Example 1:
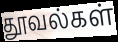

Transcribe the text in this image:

தூவல்கள்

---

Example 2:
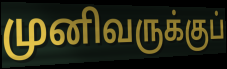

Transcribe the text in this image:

முனிவருக்குப்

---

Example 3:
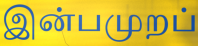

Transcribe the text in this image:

இன்பமுறப்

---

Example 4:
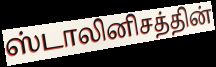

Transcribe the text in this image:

ஸ்டாலினிசத்தின்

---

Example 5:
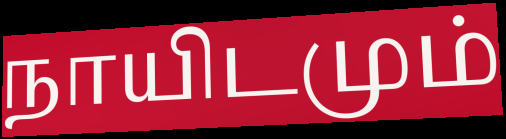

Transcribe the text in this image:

நாயிடமும்